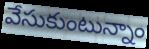
వేసుకుంటున్నాం